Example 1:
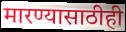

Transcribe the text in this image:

मारण्यासाठीही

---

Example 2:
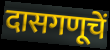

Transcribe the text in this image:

दासगणूचें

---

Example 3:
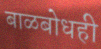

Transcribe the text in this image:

बाळबोधही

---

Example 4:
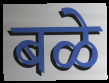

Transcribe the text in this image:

बळे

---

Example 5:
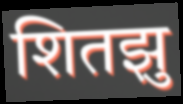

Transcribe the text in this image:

शितझु